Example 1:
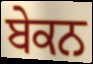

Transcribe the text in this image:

ਬੇਕਨ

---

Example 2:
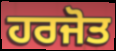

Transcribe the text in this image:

ਹਰਜੋਤ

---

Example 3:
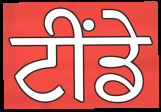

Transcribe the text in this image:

ਟੀਂਡੇ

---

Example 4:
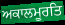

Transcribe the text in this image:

ਅਕਾਲਮੂਰਤਿ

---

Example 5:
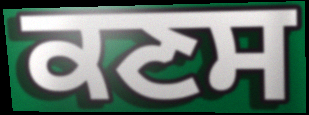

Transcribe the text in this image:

ਕਣਸ